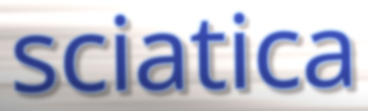
sciatica